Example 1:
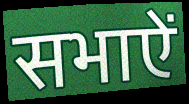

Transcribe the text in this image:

सभाऐं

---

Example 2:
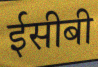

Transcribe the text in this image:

ईसीबी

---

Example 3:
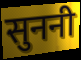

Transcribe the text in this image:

सुननी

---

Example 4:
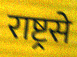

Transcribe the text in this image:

राष्ट्रसे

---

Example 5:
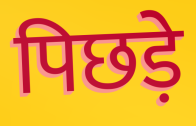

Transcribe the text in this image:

पिछड़े